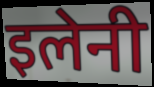
इलेनी